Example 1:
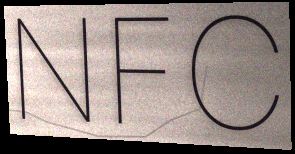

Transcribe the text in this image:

NFC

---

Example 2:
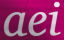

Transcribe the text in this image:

aei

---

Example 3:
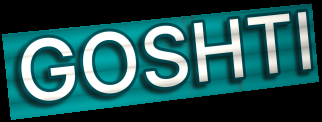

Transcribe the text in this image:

GOSHTI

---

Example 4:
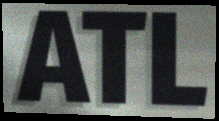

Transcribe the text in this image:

ATL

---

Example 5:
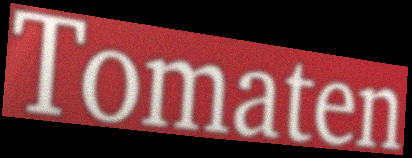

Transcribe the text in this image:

Tomaten